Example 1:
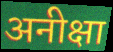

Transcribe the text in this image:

अनीक्षा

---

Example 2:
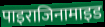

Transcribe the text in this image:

पाइराजिनामाइड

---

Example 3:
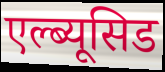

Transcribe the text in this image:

एल्ब्यूसिड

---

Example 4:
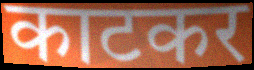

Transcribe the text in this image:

काटकर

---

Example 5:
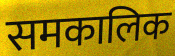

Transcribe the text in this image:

समकालिक